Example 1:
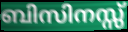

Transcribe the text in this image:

ബിസിനസ്സ്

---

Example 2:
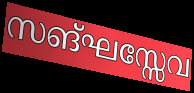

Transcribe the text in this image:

സങ്ഘസ്സേവ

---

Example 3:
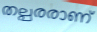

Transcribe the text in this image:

തല്പരരാണ്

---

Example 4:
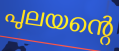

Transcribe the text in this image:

പുലയന്റെ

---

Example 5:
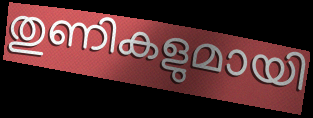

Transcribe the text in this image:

തുണികളുമായി